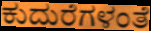
ಕುದುರೆಗಳಂತೆ